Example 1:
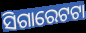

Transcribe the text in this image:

ସିଗାରେଟଟା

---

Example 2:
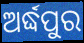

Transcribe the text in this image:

ଅର୍ଦ୍ଧପୁର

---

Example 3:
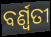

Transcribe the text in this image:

ବର୍ଣ୍ବତୀ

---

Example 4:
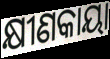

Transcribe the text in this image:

କ୍ଷୀଣକାୟା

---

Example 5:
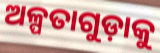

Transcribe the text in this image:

ଅଳ୍ପତାଗୁଡ଼ାକୁ